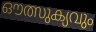
ഔത്സുക്യവും